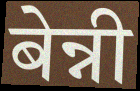
बेन्नी